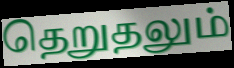
தெறுதலும்